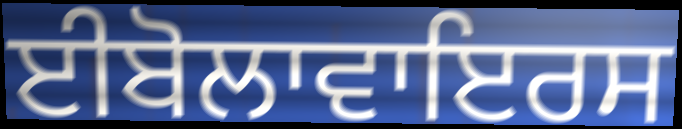
ਈਬੋਲਾਵਾਇਰਸ